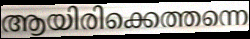
ആയിരിക്കെത്തന്നെ